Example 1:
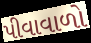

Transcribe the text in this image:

પીવાવાળો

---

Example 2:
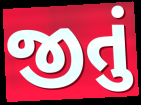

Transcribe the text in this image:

જીતું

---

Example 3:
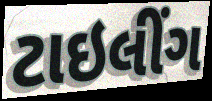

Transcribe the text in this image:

ટાઇલીંગ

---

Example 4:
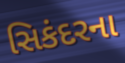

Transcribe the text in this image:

સિકંદરના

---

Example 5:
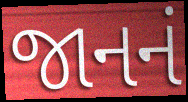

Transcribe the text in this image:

જાનનં